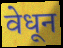
वेधून